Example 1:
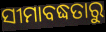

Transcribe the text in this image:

ସୀମାବଦ୍ଧତାରୁ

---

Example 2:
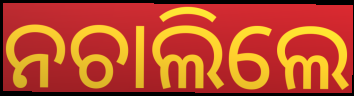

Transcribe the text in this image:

ନଚାଲିଲେ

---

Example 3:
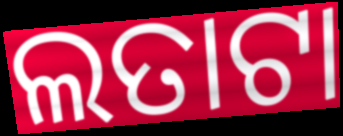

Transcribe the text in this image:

ଲତାଟା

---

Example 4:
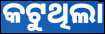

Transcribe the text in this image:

କଟୁଥିଲା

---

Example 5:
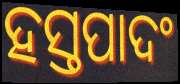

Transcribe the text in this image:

ହସ୍ତପାଦଂ